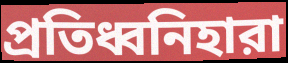
প্রতিধ্বনিহারা